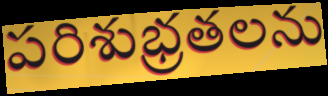
పరిశుభ్రతలను